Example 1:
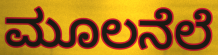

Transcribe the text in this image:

ಮೂಲನೆಲೆ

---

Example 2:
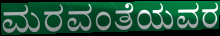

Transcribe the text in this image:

ಮರವಂತೆಯವರ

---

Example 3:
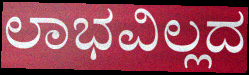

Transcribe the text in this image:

ಲಾಭವಿಲ್ಲದ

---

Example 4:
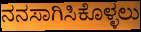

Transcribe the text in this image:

ನನಸಾಗಿಸಿಕೊಳ್ಳಲು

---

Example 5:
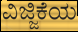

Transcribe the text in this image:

ವಿಜ್ಜಿಕೆಯ